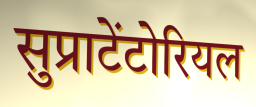
सुप्राटेंटोरियल